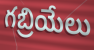
గబ్రియేలు